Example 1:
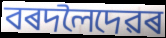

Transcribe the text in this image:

বৰদলৈদেৱৰ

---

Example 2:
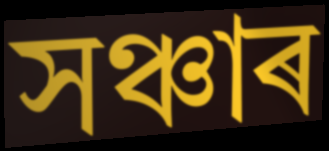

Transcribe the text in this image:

সঞ্চাৰ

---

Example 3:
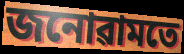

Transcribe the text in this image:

জনোৱামতে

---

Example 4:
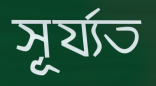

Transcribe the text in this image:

সূৰ্য্যত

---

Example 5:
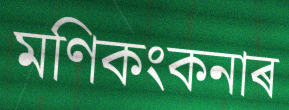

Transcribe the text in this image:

মণিকংকনাৰ